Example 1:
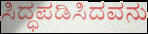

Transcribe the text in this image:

ಸಿದ್ಧಪಡಿಸಿದವನು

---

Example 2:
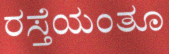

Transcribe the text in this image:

ರಸ್ತೆಯಂತೂ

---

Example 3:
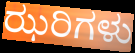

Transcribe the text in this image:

ಝರಿಗಳು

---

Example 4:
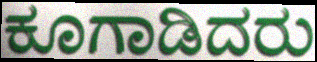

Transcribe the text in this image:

ಕೂಗಾಡಿದರು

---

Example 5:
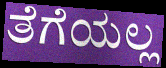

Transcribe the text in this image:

ತೆಗೆಯಲ್ಲ